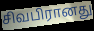
சிவபிரானது